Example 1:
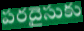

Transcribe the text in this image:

పరదైసుకు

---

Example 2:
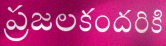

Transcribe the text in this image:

ప్రజలకందరికి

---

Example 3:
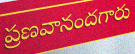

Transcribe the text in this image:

ప్రణవానందగారు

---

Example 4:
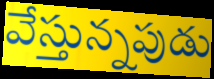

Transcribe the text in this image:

వేస్తున్నపుడు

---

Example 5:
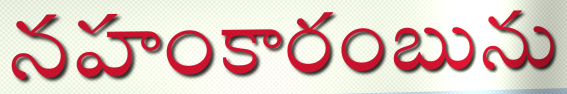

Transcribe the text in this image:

నహంకారంబును